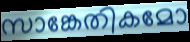
സാങ്കേതികമോ